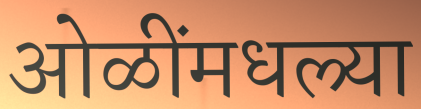
ओळींमधल्या